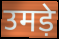
उमड़े